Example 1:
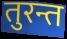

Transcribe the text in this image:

तुरन्त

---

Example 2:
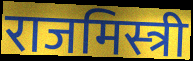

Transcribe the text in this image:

राजमिस्त्री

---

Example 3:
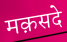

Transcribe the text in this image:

मक़सदे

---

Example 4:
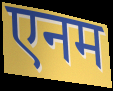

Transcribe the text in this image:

एनम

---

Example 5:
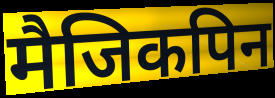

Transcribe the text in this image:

मैजिकपिन